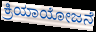
ಕ್ರಿಯಾಯೋಜನೆ